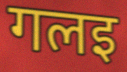
गलइ